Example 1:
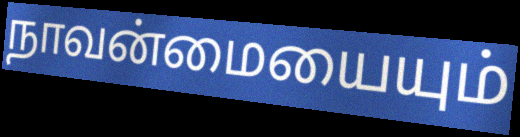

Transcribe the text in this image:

நாவன்மையையும்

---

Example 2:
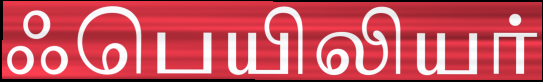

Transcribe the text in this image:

ஃபெயிலியர்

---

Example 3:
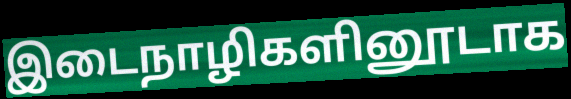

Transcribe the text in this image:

இடைநாழிகளினூடாக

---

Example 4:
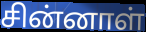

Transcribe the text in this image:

சின்னாள்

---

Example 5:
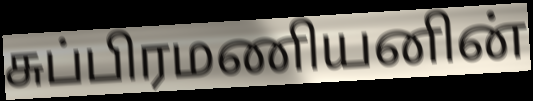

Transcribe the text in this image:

சுப்பிரமணியனின்